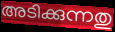
അടിക്കുന്നതു